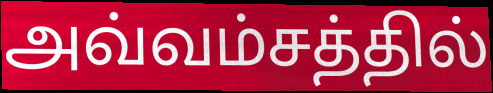
அவ்வம்சத்தில்